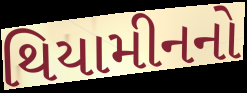
થિયામીનનો